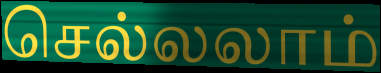
செல்லலாம்